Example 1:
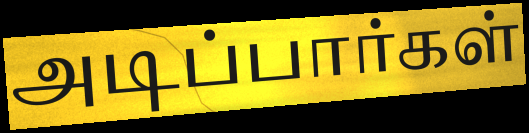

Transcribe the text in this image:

அடிப்பார்கள்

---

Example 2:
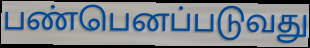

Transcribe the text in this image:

பண்பெனப்படுவது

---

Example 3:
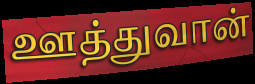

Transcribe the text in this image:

ஊத்துவான்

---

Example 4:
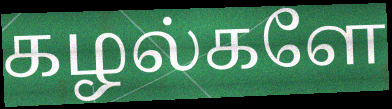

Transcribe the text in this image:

கழல்களே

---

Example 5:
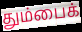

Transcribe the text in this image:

தும்பைக்